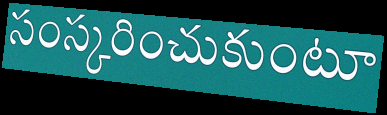
సంస్కరించుకుంటూ